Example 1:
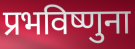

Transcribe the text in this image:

प्रभविष्णुना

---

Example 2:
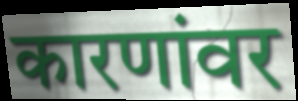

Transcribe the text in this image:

कारणांवर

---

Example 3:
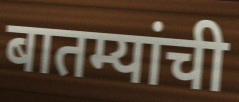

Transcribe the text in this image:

बातम्यांची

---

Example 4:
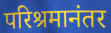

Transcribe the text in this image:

परिश्रमानंतर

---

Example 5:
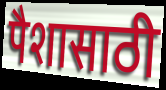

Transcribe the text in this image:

पैशासाठी